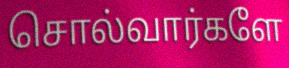
சொல்வார்களே